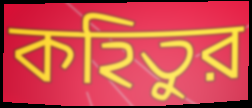
কহিতুর